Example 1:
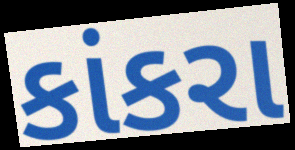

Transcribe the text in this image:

કાંકરા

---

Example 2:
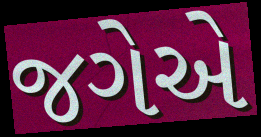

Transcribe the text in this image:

જગેએ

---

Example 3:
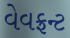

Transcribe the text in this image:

વેવફ્રન્ટ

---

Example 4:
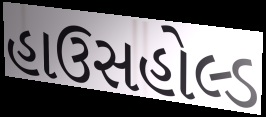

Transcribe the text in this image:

હાઉસહોલ્ડ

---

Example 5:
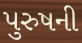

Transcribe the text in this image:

પુરુષની